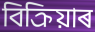
বিক্ৰিয়াৰ